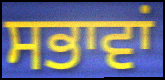
ਸਭਾਵਾਂ